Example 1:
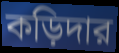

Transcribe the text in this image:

কড়িদার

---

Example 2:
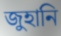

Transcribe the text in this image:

জুহানি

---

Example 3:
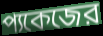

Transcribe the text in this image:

প্যকেজের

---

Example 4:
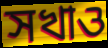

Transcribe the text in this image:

সখাও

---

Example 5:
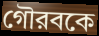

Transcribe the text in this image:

গৌরবকে